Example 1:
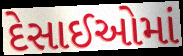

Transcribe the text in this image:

દેસાઈઓમાં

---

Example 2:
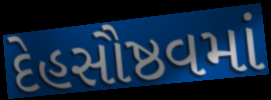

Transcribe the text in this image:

દેહસૌષ્ઠવમાં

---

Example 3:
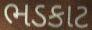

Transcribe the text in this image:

ભડકાટ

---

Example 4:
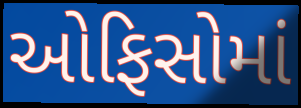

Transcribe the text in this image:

ઓફિસોમાં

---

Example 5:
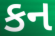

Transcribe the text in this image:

કન